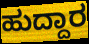
ಹುದ್ದಾರ